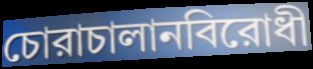
চোরাচালানবিরোধী